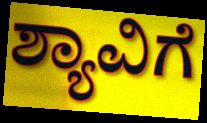
ಶ್ಯಾವಿಗೆ